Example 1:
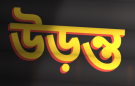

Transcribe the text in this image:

উড়ন্ত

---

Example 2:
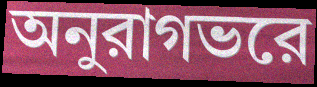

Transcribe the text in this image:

অনুরাগভরে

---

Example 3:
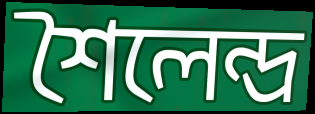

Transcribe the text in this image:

শৈলেন্দ্র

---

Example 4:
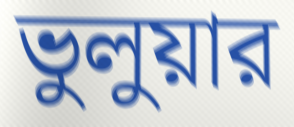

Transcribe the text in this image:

ভুলুয়ার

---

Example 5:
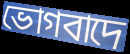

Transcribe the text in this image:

ভোগবাদে